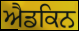
ਐਡਕਿਨ